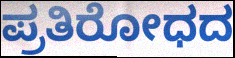
ಪ್ರತಿರೋಧದ